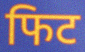
फिट